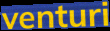
venturi